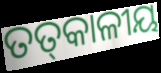
ତତ୍‌କାଳୀୟ